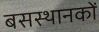
बसस्थानकों